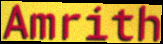
Amrith